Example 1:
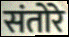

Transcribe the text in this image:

संतोरे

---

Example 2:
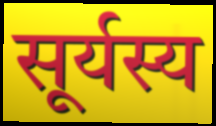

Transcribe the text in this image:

सूर्यस्य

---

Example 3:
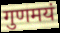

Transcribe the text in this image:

गुणमयं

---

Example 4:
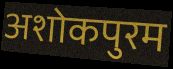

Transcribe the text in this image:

अशोकपुरम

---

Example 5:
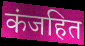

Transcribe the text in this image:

कंजहित